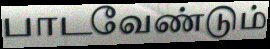
பாடவேண்டும்